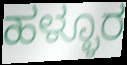
ಹಳ್ಳೂರ